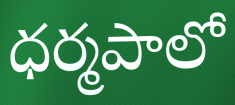
ధర్మపాలో